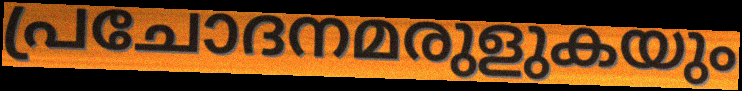
പ്രചോദനമരുളുകയും